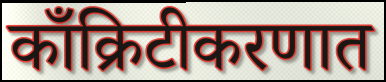
काँक्रिटीकरणात